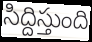
సిద్దిస్తుంది